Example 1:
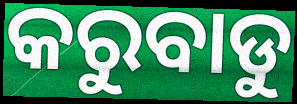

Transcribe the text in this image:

କରୁବାଡୁ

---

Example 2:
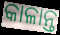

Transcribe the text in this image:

କାଳାନ୍ତ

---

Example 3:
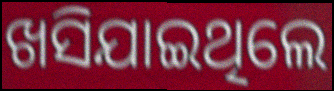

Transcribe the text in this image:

ଖସିଯାଇଥିଲେ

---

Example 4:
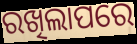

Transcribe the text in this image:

ରଖିଲାପରେ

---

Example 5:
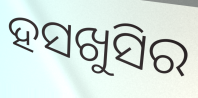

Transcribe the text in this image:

ହସଖୁସିର